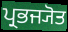
ਪ੍ਰਭਜ੍ਯੋਤ